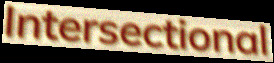
Intersectional